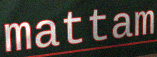
mattam